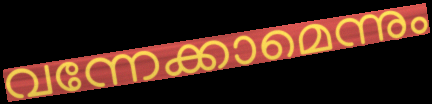
വന്നേക്കാമെന്നും